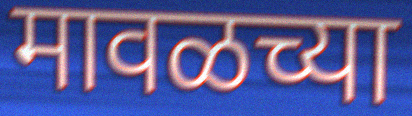
मावळच्या